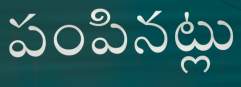
పంపినట్లు